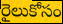
రైలుకోసం